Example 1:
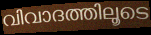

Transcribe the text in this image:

വിവാദത്തിലൂടെ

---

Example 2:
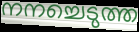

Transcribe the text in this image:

നനച്ചെടുത്ത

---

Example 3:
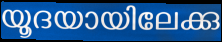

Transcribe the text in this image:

യൂദയായിലേക്കു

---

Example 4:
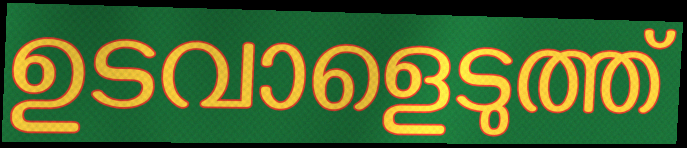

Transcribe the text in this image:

ഉടവാളെടുത്ത്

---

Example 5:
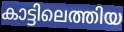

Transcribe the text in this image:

കാട്ടിലെത്തിയ